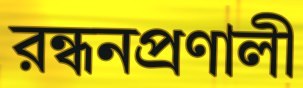
রন্ধনপ্রণালী